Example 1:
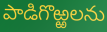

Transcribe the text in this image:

పాడిగొఱ్ఱలను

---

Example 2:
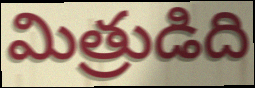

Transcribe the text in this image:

మిత్రుడిది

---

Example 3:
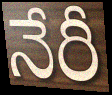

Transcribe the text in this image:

నేరీ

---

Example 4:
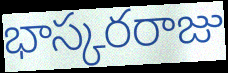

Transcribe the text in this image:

భాస్కరరాజు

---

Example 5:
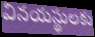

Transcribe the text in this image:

వినయస్థులకు